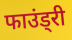
फाउंड्री